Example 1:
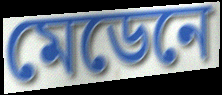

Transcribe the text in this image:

মেডেনে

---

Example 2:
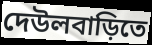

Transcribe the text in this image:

দেউলবাড়িতে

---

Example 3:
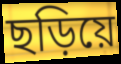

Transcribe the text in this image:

ছড়িয়ে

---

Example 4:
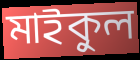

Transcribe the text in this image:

মাইকুল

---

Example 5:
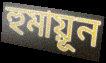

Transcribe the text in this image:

হুমায়ূন